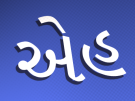
એહ